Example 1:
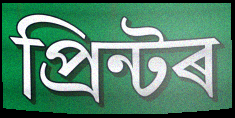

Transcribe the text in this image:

প্ৰিন্টৰ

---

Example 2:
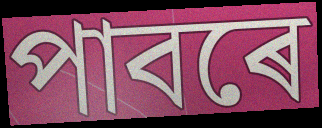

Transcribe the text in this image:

পাবৰে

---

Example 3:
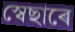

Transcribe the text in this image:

স্বেছাৰে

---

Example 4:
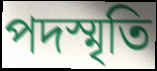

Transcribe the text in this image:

পদস্মৃতি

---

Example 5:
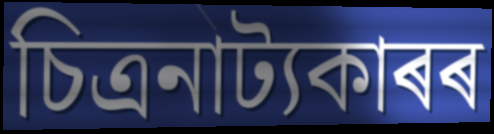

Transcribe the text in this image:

চিত্ৰনাট্যকাৰৰ